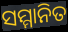
ସମ୍ମାନିତ